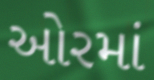
ઓરમાં